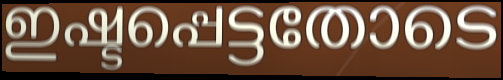
ഇഷ്ടപ്പെട്ടതോടെ